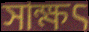
সাক্ষৎ